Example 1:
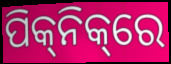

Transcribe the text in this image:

ପିକ୍‌ନିକ୍‌ରେ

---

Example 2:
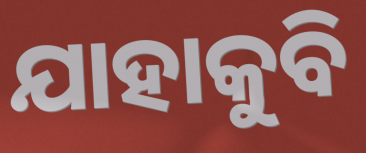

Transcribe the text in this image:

ଯାହାକୁବି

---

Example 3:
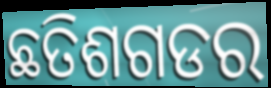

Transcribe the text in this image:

ଛତିଶଗଡର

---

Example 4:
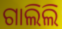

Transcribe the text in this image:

ଗାଲିଲି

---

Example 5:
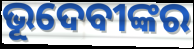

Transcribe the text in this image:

ଭୂଦେବୀଙ୍କର